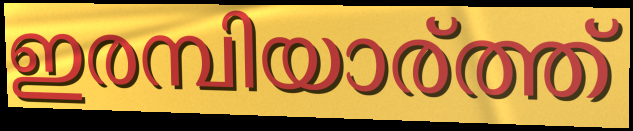
ഇരമ്പിയാര്ത്ത്